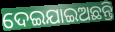
ଦେଇଯାଇଅଛନ୍ତି